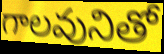
గాలవునితో